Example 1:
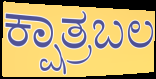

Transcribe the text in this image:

ಕ್ಷಾತ್ರಬಲ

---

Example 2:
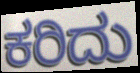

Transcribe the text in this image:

ಕರಿದು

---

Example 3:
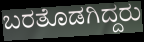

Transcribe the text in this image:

ಬರತೊಡಗಿದ್ದರು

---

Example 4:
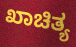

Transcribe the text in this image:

ಖಾಚಿತ್ಯ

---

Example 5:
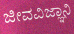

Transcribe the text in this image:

ಜೀವವಿಜ್ಞಾನಿ